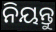
ନିୟନ୍ତୁ